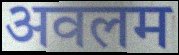
अवलम